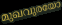
മുഖവുരയോ